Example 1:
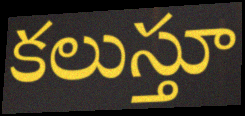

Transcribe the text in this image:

కలుస్తూ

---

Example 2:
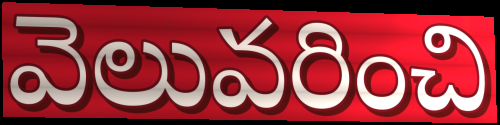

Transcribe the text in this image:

వెలువరించి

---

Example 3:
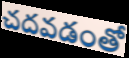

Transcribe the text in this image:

చదవడంతో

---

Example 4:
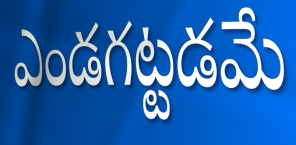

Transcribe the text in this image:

ఎండగట్టడమే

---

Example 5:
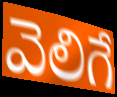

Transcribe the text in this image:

వెలిగే